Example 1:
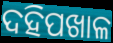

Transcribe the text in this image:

ଦହିପଖାଳ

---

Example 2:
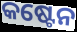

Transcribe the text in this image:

କଷ୍ଟେନ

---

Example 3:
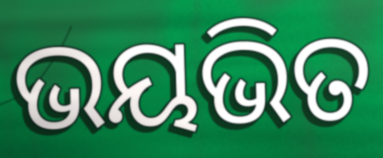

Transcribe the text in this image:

ଭୟଭିତ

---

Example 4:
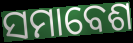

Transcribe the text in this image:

ସମାବେଶ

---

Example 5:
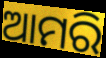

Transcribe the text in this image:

ଆମରି